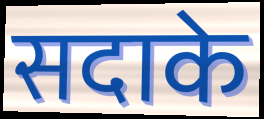
सदाके